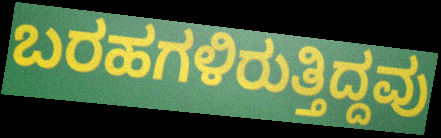
ಬರಹಗಳಿರುತ್ತಿದ್ದವು